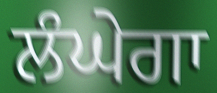
ਲੰਘੇਗਾ